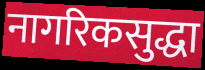
नागरिकसुद्धा